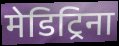
मेडिट्रिना